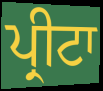
ਪ੍ਰੀਟਾ